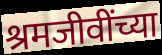
श्रमजीवींच्या